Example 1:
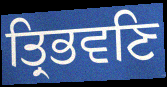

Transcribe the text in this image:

ਤ੍ਰਿਭਵਣਿ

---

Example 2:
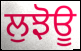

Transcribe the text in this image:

ਲੁਝੋਊ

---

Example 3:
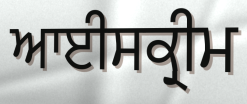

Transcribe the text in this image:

ਆਈਸਕ੍ਰੀਮ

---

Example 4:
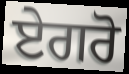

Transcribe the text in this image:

ਏਗਰੋ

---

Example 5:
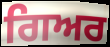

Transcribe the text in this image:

ਗਿਅਰ